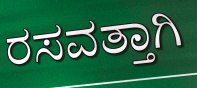
ರಸವತ್ತಾಗಿ